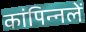
कांपिन्नलें